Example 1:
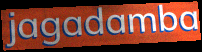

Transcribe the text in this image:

jagadamba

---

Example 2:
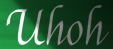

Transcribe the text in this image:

Uhoh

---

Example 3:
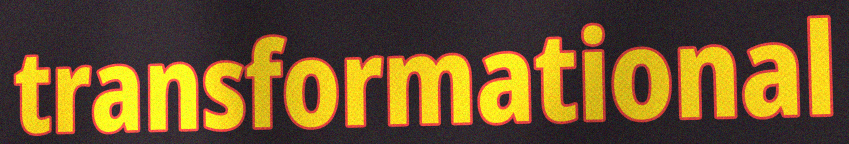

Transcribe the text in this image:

transformational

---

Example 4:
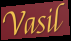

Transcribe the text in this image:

Vasil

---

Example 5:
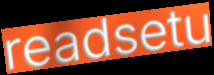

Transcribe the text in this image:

readsetu